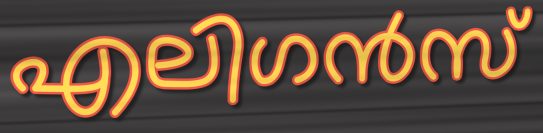
എലിഗൻസ്